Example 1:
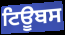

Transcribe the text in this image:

ਟਿਊਬਸ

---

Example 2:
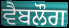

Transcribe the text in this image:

ਵੈਬਲੌਗ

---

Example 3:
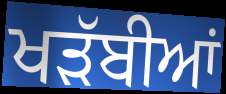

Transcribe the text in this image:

ਖੜੱਬੀਆਂ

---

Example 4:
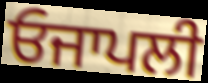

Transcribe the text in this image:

ਓਜਾਪਲੀ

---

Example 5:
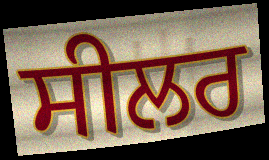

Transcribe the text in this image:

ਸੀਲਰ